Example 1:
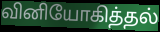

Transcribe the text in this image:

வினியோகித்தல்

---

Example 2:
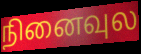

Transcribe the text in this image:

நினைவுல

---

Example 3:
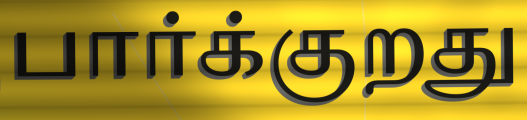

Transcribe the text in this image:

பார்க்குறது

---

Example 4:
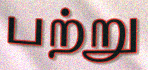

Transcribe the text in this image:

பற்று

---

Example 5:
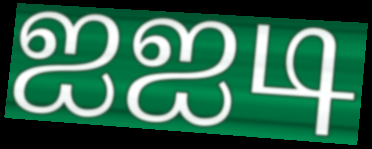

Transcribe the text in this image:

ஐஐடி